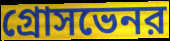
গ্রোসভেনর